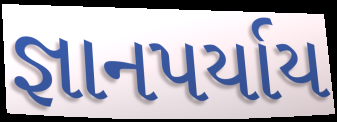
જ્ઞાનપર્યાય